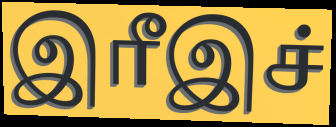
இரீஇச்